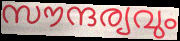
സൗന്ദര്യവും